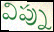
విప్ను